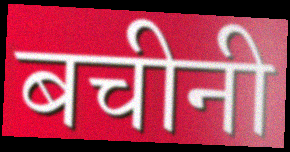
बचीनी